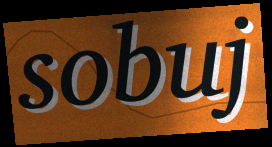
sobuj